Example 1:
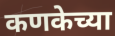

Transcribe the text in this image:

कणकेच्या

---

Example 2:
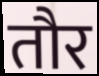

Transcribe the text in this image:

तौर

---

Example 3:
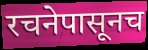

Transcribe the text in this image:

रचनेपासूनच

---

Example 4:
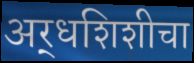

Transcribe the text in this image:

अर्धशिशीचा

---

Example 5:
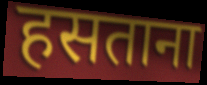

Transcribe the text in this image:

हसताना